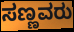
ಸಣ್ಣವರು